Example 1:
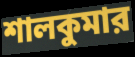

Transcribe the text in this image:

শালকুমার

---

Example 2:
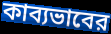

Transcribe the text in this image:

কাব্যভাবের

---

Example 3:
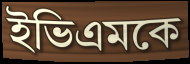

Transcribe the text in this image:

ইভিএমকে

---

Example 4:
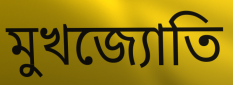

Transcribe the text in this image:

মুখজ্যোতি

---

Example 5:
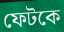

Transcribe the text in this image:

ফেটকে